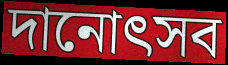
দানোৎসব